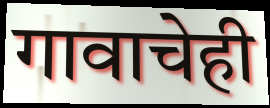
गावाचेही